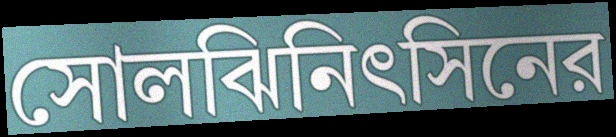
সোলঝিনিৎসিনের